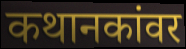
कथानकांवर